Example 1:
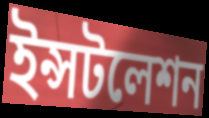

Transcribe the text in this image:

ইন্সটলেশন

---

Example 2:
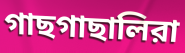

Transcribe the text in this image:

গাছগাছালিরা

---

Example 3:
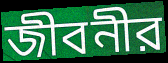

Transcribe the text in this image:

জীবনীর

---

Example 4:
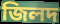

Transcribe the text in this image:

জিলদ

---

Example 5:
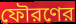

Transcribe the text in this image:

ফৌরণের